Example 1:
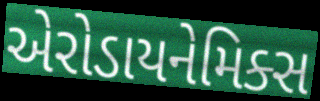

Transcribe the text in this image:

એરોડાયનેમિક્સ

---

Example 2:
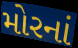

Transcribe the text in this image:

મોરનાં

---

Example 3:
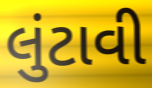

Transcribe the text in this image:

લુંટાવી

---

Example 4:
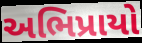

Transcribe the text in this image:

અભિપ્રાયો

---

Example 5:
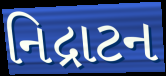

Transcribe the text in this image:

નિદ્રાટન